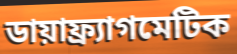
ডায়াফ্র্যাগমেটিক